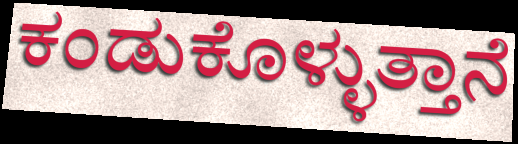
ಕಂಡುಕೊಳ್ಳುತ್ತಾನೆ